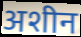
अशीन